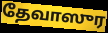
தேவாஸுர